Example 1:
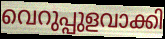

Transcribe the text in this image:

വെറുപ്പുളവാക്കി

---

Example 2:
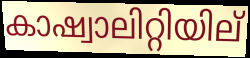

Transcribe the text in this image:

കാഷ്വാലിറ്റിയില്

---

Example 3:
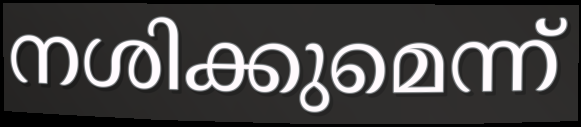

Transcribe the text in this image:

നശിക്കുമെന്ന്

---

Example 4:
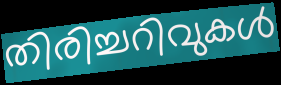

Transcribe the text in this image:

തിരിച്ചറിവുകൾ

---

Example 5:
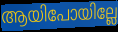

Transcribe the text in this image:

ആയിപോയില്ലേ